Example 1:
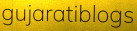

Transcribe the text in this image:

gujaratiblogs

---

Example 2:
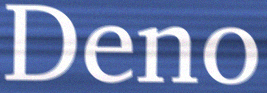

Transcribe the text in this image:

Deno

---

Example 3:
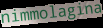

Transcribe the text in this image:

nimmolagina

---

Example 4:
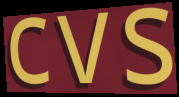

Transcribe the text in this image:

cvs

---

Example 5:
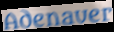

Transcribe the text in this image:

Adenauer